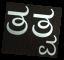
ತತ್ವ